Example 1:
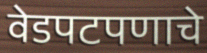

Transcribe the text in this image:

वेडपटपणाचे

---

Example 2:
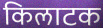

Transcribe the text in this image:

किलाटक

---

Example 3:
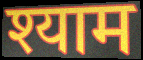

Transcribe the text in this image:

श्याम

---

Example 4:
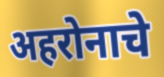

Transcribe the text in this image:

अहरोनाचे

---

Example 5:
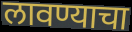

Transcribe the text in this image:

लावण्याचा